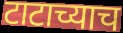
टाटाच्याच